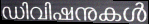
ഡിവിഷനുകൾ